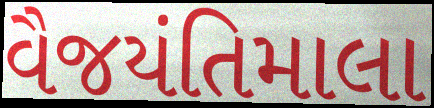
વૈજયંતિમાલા